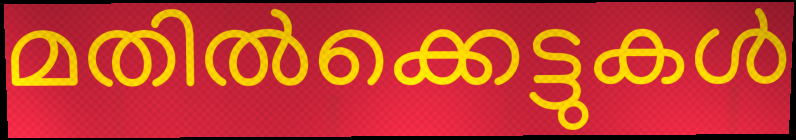
മതിൽക്കെട്ടുകൾ